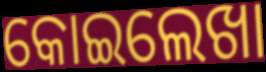
କୋଇଲେଖା